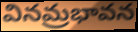
వినమ్రభావన